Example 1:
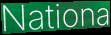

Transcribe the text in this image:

Nationa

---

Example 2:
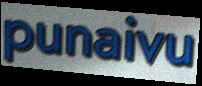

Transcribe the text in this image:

punaivu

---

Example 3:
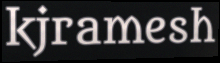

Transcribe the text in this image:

kjramesh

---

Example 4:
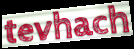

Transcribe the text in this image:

tevhach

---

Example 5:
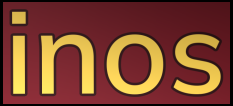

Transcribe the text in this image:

inos